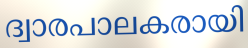
ദ്വാരപാലകരായി